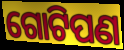
ଗୋଟିପଣ